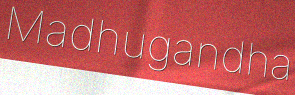
Madhugandha